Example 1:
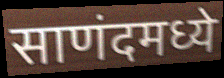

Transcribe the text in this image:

साणंदमध्ये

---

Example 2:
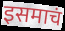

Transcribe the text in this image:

इसमाचं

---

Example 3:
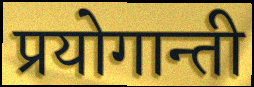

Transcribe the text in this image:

प्रयोगान्ती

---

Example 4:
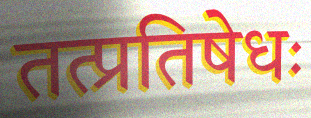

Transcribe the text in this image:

तत्प्रतिषेधः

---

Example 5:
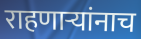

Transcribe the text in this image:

राहणाऱ्यांनाच